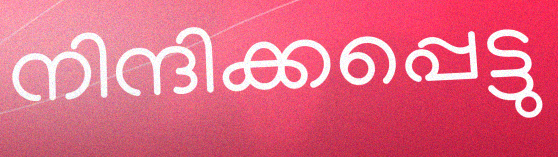
നിന്ദിക്കപ്പെട്ടു